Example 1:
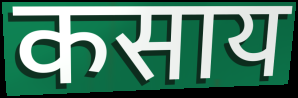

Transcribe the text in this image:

कसाय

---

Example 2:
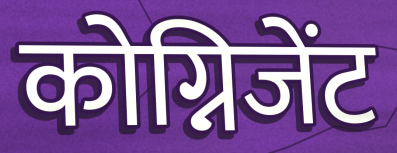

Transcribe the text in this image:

कोग्निजेंट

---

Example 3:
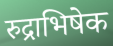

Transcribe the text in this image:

रुद्राभिषेक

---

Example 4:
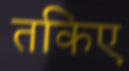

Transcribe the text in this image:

तकिए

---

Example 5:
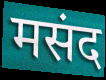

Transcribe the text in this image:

मसंद